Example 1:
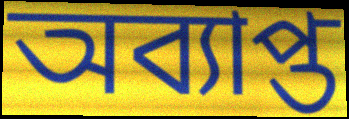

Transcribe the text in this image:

অব্যাপ্ত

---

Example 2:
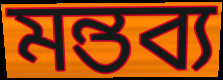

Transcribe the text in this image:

মন্তব্য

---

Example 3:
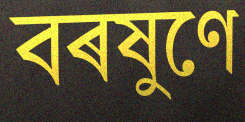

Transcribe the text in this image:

বৰষুণে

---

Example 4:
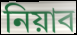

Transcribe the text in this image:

নিয়াব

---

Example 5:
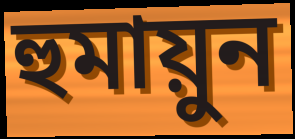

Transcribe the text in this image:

হুমায়ুন